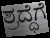
ಶ್ರದ್ಧೆಗೆ